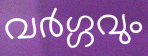
വർഗ്ഗവും